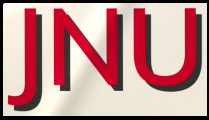
JNU